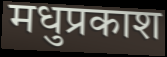
मधुप्रकाश